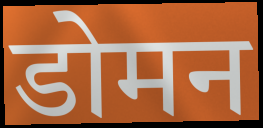
डोमन